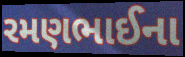
રમણભાઈના